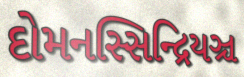
દોમનસ્સિન્દ્રિયઞ્ચ